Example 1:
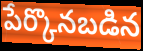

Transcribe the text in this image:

పేర్కొనబడిన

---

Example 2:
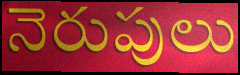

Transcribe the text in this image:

నెరుపులు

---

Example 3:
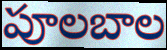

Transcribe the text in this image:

పూలబాల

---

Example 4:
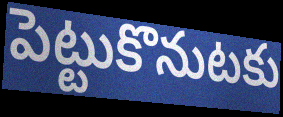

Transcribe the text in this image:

పెట్టుకొనుటకు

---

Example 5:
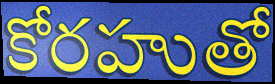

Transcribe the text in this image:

కోరహుతో